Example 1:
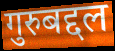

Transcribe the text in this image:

गुरुबद्दल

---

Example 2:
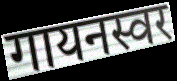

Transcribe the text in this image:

गायनस्वर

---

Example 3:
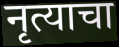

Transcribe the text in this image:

नृत्याचा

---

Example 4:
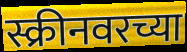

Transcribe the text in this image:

स्क्रीनवरच्या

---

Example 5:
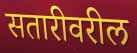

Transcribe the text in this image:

सतारीवरील